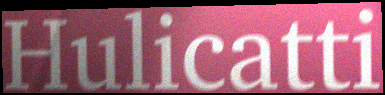
Hulicatti